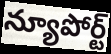
న్యూపోర్ట్